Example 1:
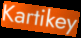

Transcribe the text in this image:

Kartikey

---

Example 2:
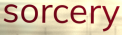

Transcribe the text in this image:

sorcery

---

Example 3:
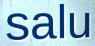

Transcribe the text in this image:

salu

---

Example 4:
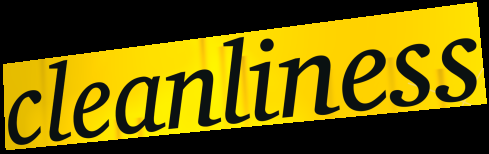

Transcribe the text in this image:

cleanliness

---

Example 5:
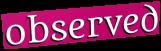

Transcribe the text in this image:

observed